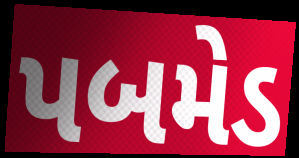
પબમેડ